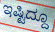
ಇಷ್ಟಿದ್ದೂ